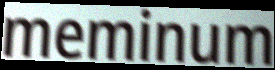
meminum